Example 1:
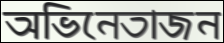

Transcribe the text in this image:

অভিনেতাজন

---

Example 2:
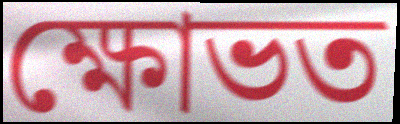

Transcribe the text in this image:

ক্ষোভত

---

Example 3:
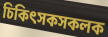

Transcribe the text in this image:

চিকিৎসকসকলক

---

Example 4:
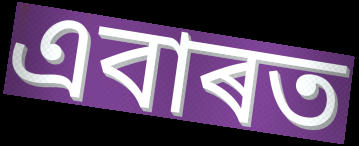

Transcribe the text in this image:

এবাৰত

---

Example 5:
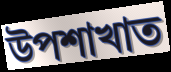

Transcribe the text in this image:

উপশাখাত